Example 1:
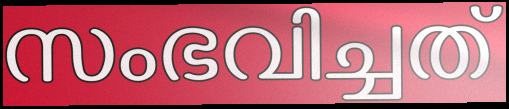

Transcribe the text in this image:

സംഭവിച്ചത്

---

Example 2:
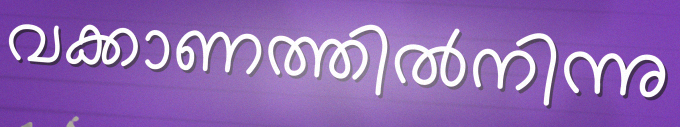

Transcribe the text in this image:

വക്കാണത്തിൽനിന്നു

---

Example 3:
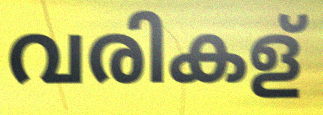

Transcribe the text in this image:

വരികള്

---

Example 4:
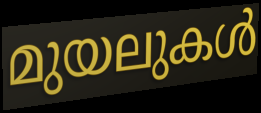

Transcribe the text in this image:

മുയലുകൾ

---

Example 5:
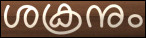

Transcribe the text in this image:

ശക്രനും